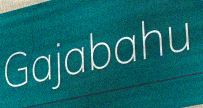
Gajabahu